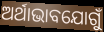
ଅର୍ଥାଭାବଯୋଗୁଁ